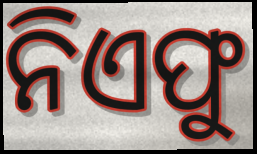
ନିଏଫୁ